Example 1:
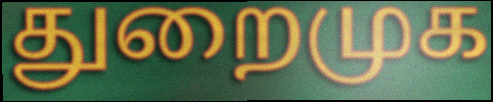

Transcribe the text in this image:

துறைமுக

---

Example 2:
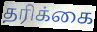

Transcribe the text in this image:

தரிக்கை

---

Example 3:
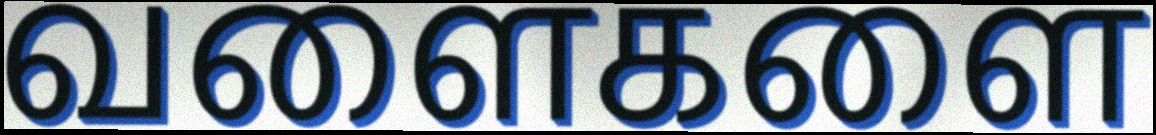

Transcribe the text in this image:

வளைகளை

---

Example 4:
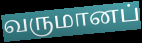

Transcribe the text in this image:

வருமானப்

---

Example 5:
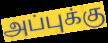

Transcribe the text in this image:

அப்புக்கு